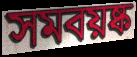
সমবয়ষ্ক